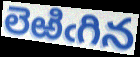
లెఱిఁగిన